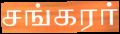
சங்கரர்